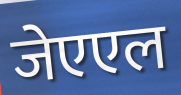
जेएएल